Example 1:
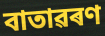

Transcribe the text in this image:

বাতাৱৰণ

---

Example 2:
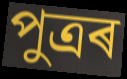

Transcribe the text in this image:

পুত্ৰৰ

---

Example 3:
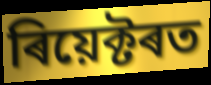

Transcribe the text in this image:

ৰিয়েক্টৰত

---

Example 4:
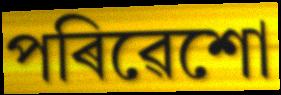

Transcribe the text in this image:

পৰিৱেশো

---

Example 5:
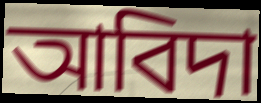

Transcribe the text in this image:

আবিদা